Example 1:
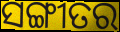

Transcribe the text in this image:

ସଙ୍ଗୀତର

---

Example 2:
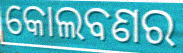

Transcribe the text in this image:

କୋଲବଣର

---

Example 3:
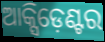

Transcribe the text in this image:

ଆକ୍ସିଡ଼େଣ୍ଟର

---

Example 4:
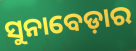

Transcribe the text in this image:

ସୁନାବେଡ଼ାର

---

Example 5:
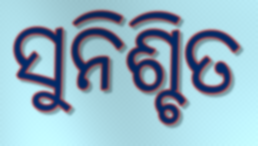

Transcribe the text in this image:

ସୁନିଶ୍ଚିତ